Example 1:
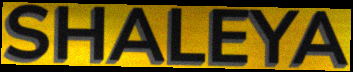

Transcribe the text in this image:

SHALEYA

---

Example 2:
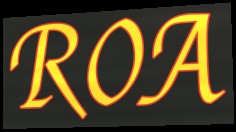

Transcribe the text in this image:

ROA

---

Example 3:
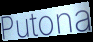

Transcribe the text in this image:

Putona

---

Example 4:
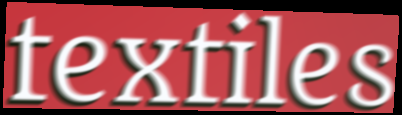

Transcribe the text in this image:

textiles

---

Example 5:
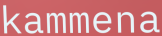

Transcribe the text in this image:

kammena